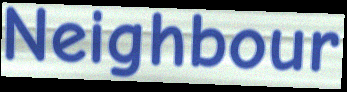
Neighbour